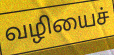
வழியைச்